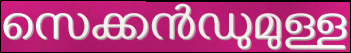
സെക്കൻഡുമുള്ള